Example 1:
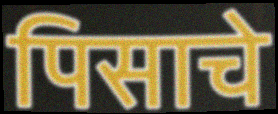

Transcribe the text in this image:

पिसाचे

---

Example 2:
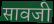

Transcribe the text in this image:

सावजी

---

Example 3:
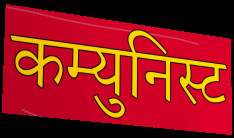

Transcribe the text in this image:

कम्युनिस्ट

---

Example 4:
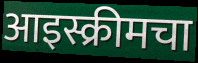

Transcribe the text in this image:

आइस्क्रीमचा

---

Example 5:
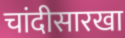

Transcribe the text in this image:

चांदीसारखा